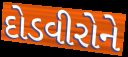
દોડવીરોને